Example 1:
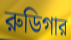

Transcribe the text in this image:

রুডিগার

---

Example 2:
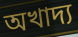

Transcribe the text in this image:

অখাদ্য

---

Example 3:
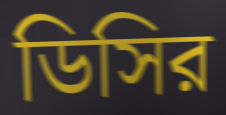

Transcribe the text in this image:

ডিসির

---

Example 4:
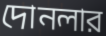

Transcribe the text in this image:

দোনলার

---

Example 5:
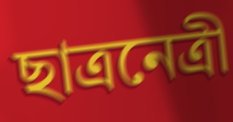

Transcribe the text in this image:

ছাত্রনেত্রী